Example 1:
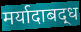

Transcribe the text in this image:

मर्यादाबद्ध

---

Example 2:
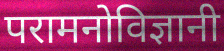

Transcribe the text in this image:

परामनोविज्ञानी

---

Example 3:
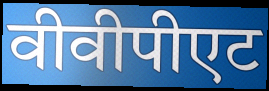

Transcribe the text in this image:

वीवीपीएट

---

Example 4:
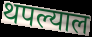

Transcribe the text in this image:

थपल्याल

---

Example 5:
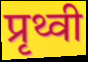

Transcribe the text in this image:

प्रृथ्वी